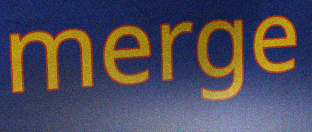
merge